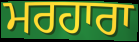
ਮਰਹਾਰਾ